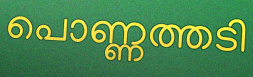
പൊണ്ണത്തടി